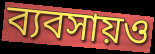
ব্যবসায়ও